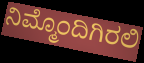
ನಿಮ್ಮೊಂದಿಗಿರಲಿ